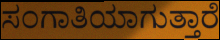
ಸಂಗಾತಿಯಾಗುತ್ತಾರೆ